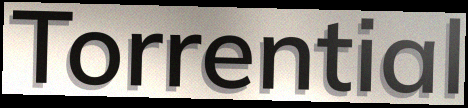
Torrential